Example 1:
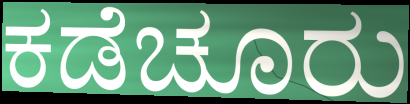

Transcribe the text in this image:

ಕಡೆಚೂರು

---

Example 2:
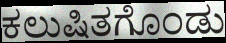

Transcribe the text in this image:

ಕಲುಷಿತಗೊಂಡು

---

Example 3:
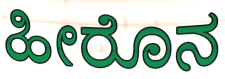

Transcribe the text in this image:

ಹೀರೊನ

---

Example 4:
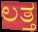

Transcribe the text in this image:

ಲತ್ತ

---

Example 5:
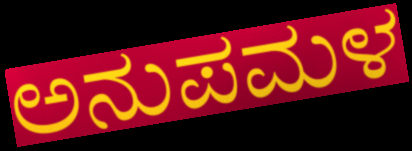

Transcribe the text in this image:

ಅನುಪಮಳ